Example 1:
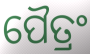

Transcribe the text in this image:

ପୈତ୍ରଂ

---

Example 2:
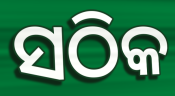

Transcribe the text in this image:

ସଠିକ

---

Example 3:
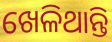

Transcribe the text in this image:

ଖେଳିଥାନ୍ତି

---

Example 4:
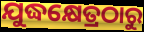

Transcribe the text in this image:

ଯୁଦ୍ଧକ୍ଷେତ୍ରଠାରୁ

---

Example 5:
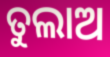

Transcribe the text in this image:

ତୁଲାଅ